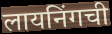
लायनिंगची